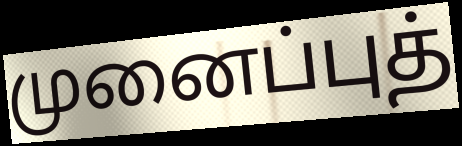
முனைப்புத்